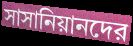
সাসানিয়ানদের